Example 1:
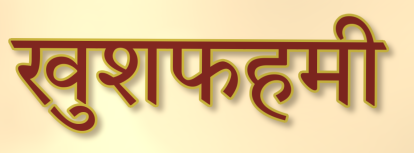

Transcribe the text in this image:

खुशफहमी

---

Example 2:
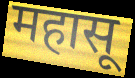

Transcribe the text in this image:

महासू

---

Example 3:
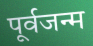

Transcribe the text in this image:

पूर्वजन्‍म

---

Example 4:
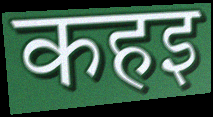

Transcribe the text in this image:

कहइ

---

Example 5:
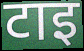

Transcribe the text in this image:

टाइ